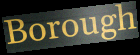
Borough